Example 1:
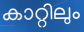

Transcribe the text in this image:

കാറ്റിലും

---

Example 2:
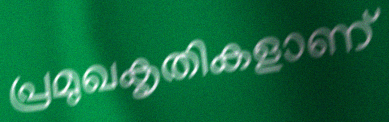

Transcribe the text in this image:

പ്രമുഖകൃതികളാണ്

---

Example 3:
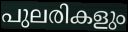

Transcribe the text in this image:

പുലരികളും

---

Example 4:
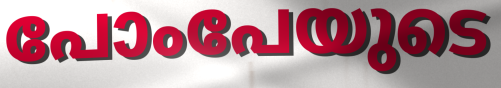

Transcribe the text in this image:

പോംപേയുടെ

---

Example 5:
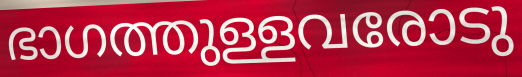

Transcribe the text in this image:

ഭാഗത്തുള്ളവരോടു